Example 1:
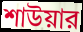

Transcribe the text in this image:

শাউয়ার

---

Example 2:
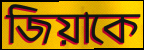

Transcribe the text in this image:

জিয়াকে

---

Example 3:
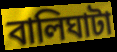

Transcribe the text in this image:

বালিঘাটা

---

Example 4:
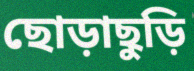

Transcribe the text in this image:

ছোড়াছুড়ি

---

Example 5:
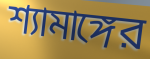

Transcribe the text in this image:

শ্যামাঙ্গের